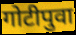
गोटीपुवा